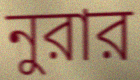
নুরার